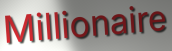
Millionaire